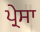
ਪ੍ਰੇਸਾ